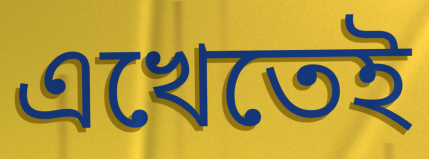
এখেতেই